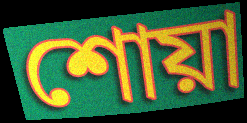
শোয়া